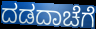
ದಡದಾಚೆಗೆ